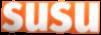
susu